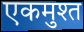
एकमुश्‍त